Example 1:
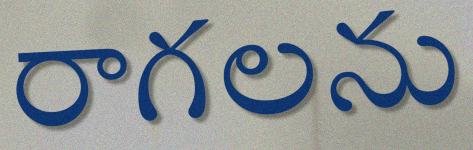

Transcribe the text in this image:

రాగలను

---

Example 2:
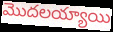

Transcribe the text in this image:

మొదలయ్యాయి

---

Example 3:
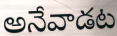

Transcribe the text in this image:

అనేవాడట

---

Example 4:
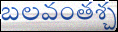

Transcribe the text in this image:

బలవంతశ్చ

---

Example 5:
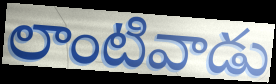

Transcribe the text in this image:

లాంటివాడు